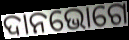
ଦାନଭୋଗେ